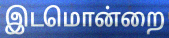
இடமொன்றை